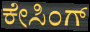
ಕೇಸಿಂಗ್